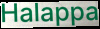
Halappa